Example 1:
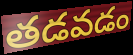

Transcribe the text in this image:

తడవడం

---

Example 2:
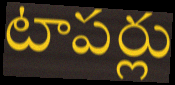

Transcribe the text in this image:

టాపర్లు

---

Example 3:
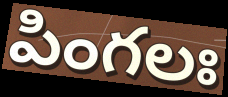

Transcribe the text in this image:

పింగలః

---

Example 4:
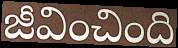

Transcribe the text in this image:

జీవించింది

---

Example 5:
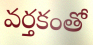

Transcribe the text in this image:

వర్తకంతో